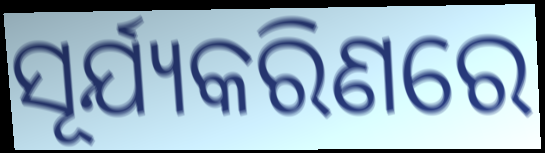
ସୂର୍ଯ୍ୟକରିଣରେ